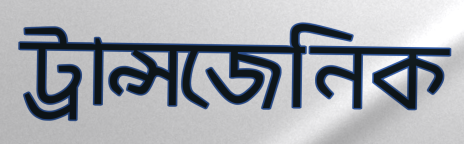
ট্রান্সজেনিক